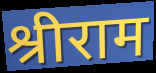
श्रीराम